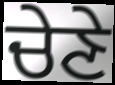
ਚੇਣੇ